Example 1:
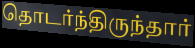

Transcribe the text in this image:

தொடர்ந்திருந்தார்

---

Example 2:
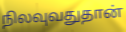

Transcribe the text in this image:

நிலவுவதுதான்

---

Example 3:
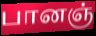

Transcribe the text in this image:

பானஞ்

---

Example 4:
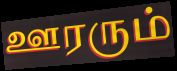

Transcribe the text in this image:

ஊரரும்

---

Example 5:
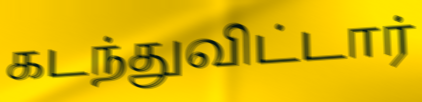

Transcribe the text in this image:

கடந்துவிட்டார்